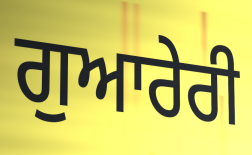
ਗੁਆਰੇਰੀ